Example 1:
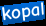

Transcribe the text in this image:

kopal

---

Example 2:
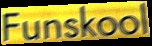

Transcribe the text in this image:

Funskool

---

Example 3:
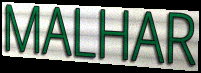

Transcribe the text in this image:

MALHAR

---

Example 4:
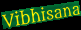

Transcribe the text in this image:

Vibhisana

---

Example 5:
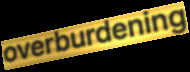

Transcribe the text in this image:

overburdening